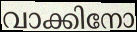
വാക്കിനോ